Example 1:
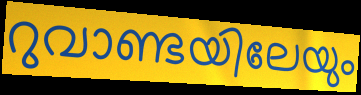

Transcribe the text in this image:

റുവാണ്ടയിലേയും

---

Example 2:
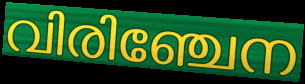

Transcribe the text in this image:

വിരിഞ്ചേന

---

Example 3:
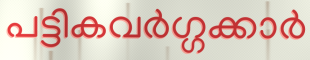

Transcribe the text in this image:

പട്ടികവർഗ്ഗക്കാർ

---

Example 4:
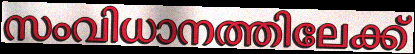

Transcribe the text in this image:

സംവിധാനത്തിലേക്ക്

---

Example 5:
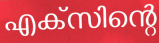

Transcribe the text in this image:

എക്‌സിന്റെ